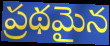
ప్రథమైన